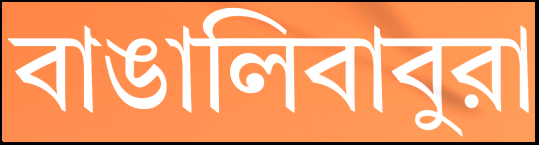
বাঙালিবাবুরা